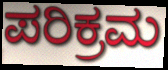
ಪರಿಕ್ರಮ